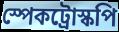
স্পেকট্রোস্কপি